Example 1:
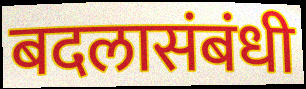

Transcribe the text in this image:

बदलासंबंधी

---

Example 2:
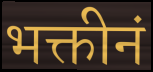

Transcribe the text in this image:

भक्तीनं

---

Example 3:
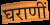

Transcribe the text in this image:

घराणीं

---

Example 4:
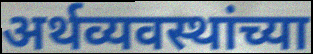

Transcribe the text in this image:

अर्थव्यवस्थांच्या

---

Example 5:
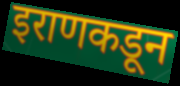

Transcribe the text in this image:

इराणकडून